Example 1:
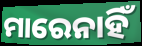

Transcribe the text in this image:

ମାରେନାହିଁ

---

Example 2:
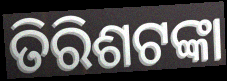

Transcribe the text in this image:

ତିରିଶଟଙ୍କା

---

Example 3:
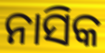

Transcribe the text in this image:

ନାସିକ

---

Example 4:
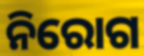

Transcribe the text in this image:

ନିରୋଗ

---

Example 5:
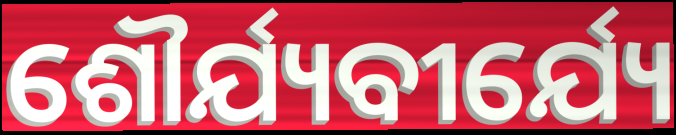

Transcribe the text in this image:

ଶୌର୍ଯ୍ୟବୀର୍ଯ୍ୟେ